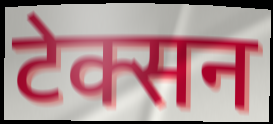
टेक्सन